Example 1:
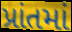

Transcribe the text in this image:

પ્રાંતમાં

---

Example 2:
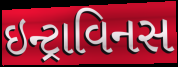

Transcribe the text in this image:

ઇન્ટ્રાવિનસ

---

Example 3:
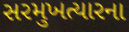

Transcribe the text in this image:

સરમુખત્યારના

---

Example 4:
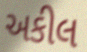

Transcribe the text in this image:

અકીલ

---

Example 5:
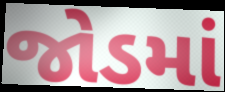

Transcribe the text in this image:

જોડમાં